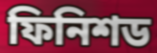
ফিনিশড